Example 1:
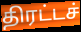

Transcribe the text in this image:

திரட்டச்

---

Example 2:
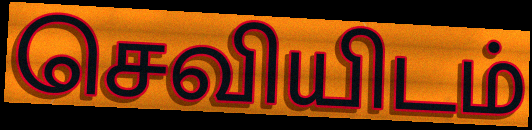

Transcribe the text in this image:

செவியிடம்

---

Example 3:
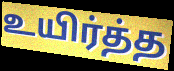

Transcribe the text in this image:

உயிர்த்த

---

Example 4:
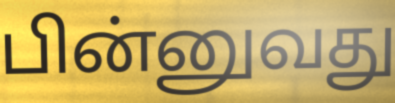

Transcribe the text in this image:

பின்னுவது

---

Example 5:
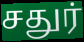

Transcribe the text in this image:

சதுர்